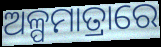
ଅଳ୍ପମାତ୍ରାରେ